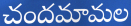
చందమామల